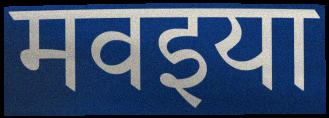
मवइया